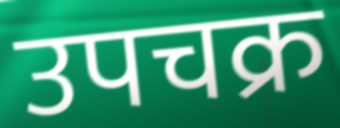
उपचक्र